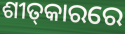
ଶୀତ୍‌କାରରେ